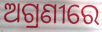
ଅଗ୍ରଣୀରେ